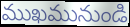
ముఖమునుండి